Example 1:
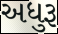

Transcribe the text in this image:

અધુરૂ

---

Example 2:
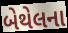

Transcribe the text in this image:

બેથેલના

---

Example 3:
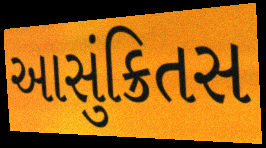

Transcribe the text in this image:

આસુંક્રિતસ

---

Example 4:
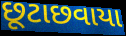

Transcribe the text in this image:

છૂટાછવાયા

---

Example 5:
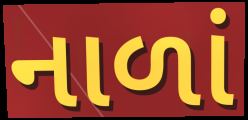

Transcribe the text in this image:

નાળાં